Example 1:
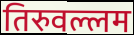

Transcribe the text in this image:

तिरुवल्लम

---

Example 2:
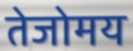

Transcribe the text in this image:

तेजोमय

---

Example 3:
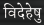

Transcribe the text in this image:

विदेहेषु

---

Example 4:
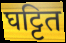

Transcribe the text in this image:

घट्टित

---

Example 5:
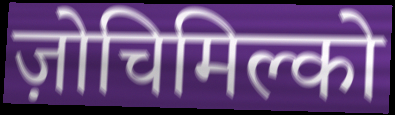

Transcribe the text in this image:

ज़ोचिमिल्को